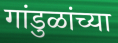
गांडुळांच्या